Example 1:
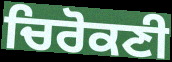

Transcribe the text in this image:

ਚਿਰੋਕਣੀ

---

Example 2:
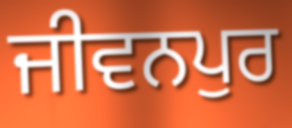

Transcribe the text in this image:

ਜੀਵਨਪੁਰ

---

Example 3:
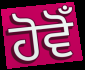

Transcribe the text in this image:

ਹੋਵੋਁ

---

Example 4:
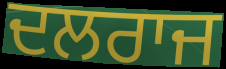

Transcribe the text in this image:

ਦਲਰਾਜ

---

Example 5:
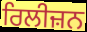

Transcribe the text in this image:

ਰਿਲੀਜ਼ਨ